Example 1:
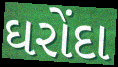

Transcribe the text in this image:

ઘરોંદા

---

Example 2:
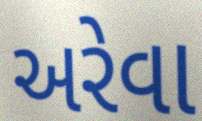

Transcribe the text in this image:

અરેવા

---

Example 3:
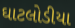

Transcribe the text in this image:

ઘાટલોડીયા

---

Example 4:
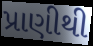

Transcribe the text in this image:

પ્રાણીથી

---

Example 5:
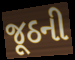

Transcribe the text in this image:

જૂઠની